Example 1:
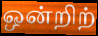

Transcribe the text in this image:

ஒன்றிற்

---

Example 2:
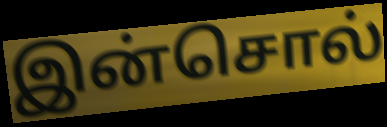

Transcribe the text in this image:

இன்சொல்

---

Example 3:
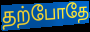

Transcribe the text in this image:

தற்போதே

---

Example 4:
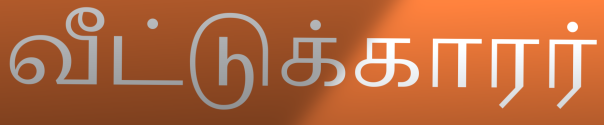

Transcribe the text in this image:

வீட்டுக்காரர்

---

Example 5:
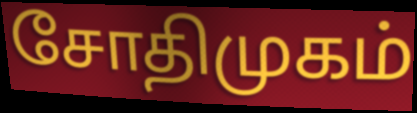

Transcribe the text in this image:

சோதிமுகம்